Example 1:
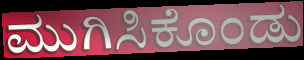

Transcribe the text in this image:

ಮುಗಿಸಿಕೊಂಡು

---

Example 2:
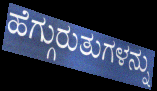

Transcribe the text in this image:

ಹೆಗ್ಗುರುತುಗಳನ್ನು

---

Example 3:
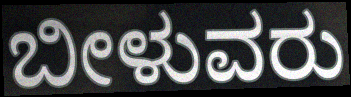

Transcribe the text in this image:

ಬೀಳುವರು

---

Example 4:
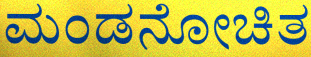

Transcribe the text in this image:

ಮಂಡನೋಚಿತ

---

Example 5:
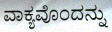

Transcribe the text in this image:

ವಾಕ್ಯವೊಂದನ್ನು